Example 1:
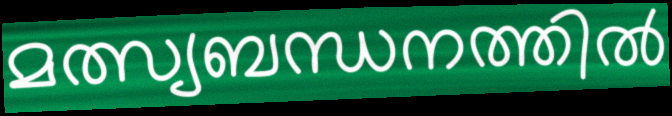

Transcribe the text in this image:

മത്സ്യബന്ധനത്തിൽ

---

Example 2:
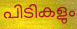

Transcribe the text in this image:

പിടികളും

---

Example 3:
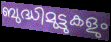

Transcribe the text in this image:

ബുദ്ധിമുട്ടുകളും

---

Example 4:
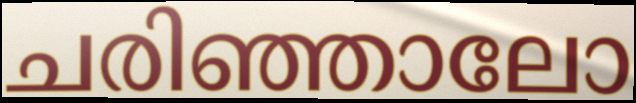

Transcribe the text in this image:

ചരിഞ്ഞാലോ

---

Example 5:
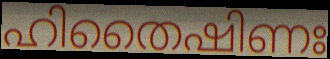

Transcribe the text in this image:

ഹിതൈഷിണഃ